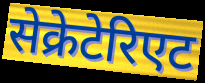
सेक्रेटेरिएट